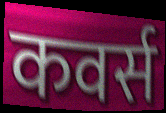
कवर्स